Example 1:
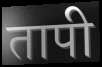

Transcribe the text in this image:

तापी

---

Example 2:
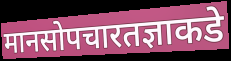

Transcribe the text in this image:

मानसोपचारतज्ञाकडे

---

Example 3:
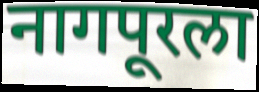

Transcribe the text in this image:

नागपूरला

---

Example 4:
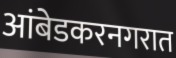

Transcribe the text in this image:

आंबेडकरनगरात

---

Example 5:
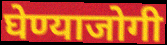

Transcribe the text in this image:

घेण्याजोगी